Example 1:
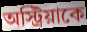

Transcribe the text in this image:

অস্ট্রিয়াকে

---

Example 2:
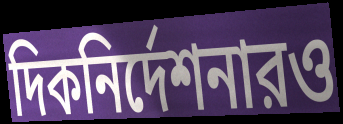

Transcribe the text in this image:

দিকনির্দেশনারও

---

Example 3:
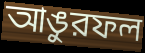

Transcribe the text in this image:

আঙুরফল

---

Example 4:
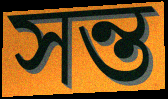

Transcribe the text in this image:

সন্ত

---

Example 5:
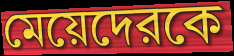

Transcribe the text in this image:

মেয়েদেরকে